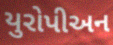
યુરોપીઅન